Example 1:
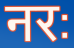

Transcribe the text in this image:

नरः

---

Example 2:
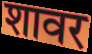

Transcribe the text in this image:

शावर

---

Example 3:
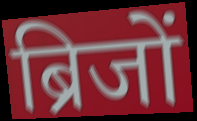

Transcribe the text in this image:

ब्रिजों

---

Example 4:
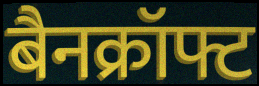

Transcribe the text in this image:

बैनक्रॉफ्ट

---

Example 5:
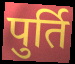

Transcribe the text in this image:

पुर्ति